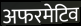
अफरमेटिव